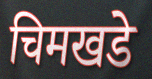
चिमखडे